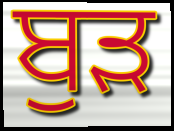
ਬੁੜ